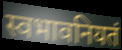
स्वभावनियतं